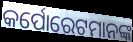
କର୍ପୋରେଟମାନଙ୍କ